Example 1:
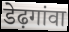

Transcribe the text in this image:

डेढ़गांवा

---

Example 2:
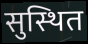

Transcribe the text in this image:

सुस्थित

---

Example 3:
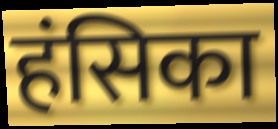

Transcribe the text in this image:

हंसिका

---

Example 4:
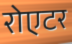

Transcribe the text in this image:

रोएटर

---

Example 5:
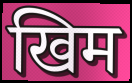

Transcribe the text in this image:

खिम